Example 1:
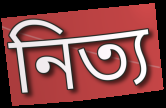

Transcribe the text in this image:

নিত্য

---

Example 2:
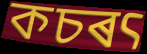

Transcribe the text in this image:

কচৰৎ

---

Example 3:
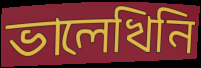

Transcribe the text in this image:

ভালেখিনি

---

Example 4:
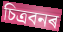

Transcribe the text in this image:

চিত্ৰবনৰ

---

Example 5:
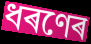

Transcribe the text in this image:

ধৰণেৰ